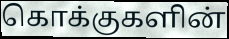
கொக்குகளின்